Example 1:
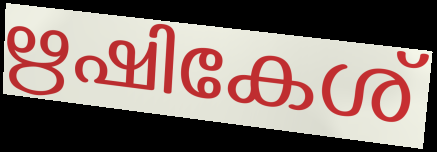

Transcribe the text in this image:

ഋഷികേശ്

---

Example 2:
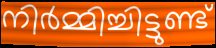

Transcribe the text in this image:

നിർമ്മിച്ചിട്ടുണ്ട്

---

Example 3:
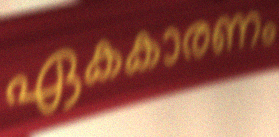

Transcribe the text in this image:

ഏകകാരണം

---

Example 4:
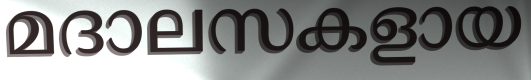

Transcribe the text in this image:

മദാലസകളായ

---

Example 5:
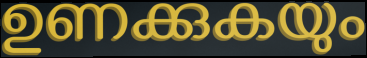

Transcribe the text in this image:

ഉണക്കുകയും